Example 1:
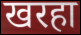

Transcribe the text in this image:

खरहा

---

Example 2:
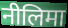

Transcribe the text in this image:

नीलिमा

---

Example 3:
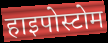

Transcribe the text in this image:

हाइपोस्टोम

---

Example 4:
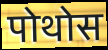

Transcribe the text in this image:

पोथोस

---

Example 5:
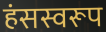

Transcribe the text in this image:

हंसस्वरूप